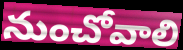
నుంచోవాలి